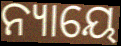
ନ୍ୟାୟେ